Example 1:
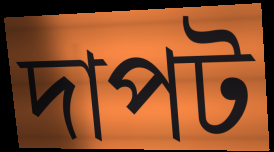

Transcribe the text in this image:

দাপট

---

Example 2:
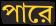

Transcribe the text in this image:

পারে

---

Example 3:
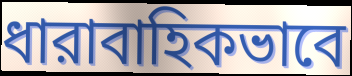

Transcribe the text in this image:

ধারাবাহিকভাবে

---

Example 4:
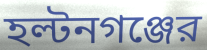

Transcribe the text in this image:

হল্টনগঞ্জের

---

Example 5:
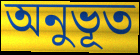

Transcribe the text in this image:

অনুভূত